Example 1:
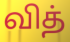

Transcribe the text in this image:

வித்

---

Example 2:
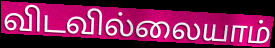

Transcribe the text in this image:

விடவில்லையாம்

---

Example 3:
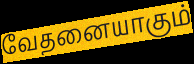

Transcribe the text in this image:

வேதனையாகும்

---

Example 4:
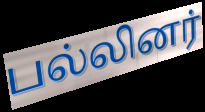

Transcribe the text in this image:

பல்லினர்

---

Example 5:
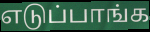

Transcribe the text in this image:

எடுப்பாங்க